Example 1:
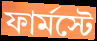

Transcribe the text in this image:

ফার্মস্টে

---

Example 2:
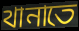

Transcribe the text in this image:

থানাতে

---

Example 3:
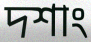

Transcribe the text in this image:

দশাং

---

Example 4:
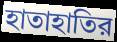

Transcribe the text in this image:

হাতাহাতির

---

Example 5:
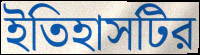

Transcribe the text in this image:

ইতিহাসটির